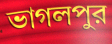
ভাগলপুর